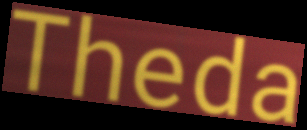
Theda